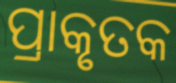
ପ୍ରାକୃତକ